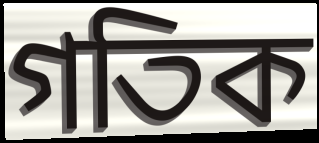
গতিক